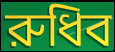
রুধিব